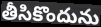
తీసికొందును